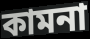
কামনা